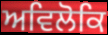
ਅਵਿਲੋਕਿ